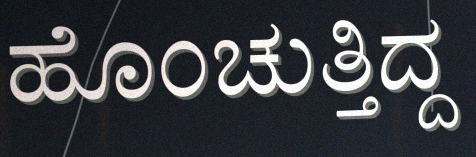
ಹೊಂಚುತ್ತಿದ್ದ